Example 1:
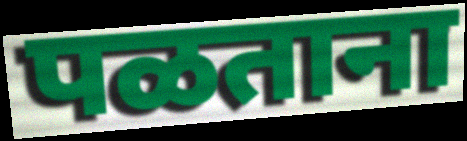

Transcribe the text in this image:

पळताना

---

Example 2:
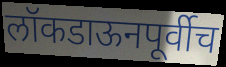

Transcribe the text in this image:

लॉकडाऊनपूर्वीच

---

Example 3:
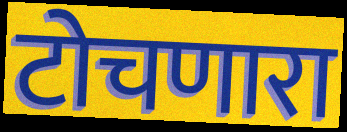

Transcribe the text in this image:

टोचणारा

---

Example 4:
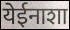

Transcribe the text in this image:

येईनाशा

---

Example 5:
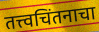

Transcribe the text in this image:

तत्त्वचिंतनाचा